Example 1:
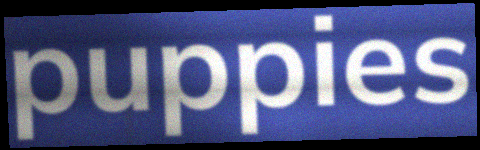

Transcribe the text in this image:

puppies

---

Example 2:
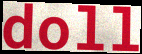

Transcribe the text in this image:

doll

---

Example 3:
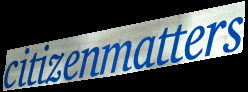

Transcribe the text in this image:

citizenmatters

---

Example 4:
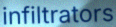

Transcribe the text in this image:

infiltrators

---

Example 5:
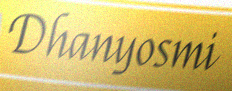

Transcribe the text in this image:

Dhanyosmi